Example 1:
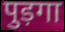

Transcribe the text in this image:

पुड़गा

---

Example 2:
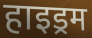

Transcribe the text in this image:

हाइड्रम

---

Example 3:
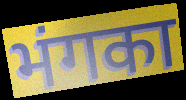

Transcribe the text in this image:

भंगका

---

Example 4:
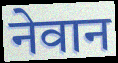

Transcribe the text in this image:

नेवान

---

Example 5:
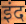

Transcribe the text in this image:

इंद